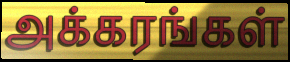
அக்கரங்கள்